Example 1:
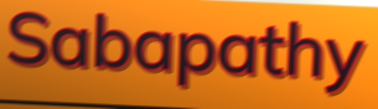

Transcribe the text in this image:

Sabapathy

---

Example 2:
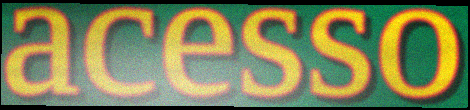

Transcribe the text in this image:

acesso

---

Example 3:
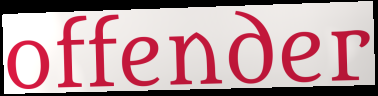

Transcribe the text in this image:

offender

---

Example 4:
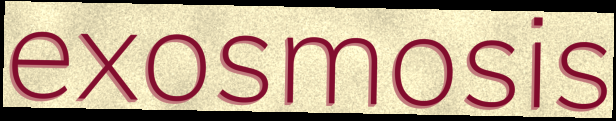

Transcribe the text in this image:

exosmosis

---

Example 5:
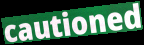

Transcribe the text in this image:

cautioned